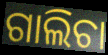
ଗାଲିଚା